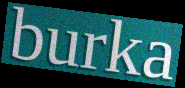
burka